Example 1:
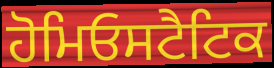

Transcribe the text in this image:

ਹੋਮਿਓਸਟੈਟਿਕ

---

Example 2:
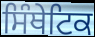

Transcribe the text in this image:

ਸਿੰਥੇਟਿਕ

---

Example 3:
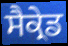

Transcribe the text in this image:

ਸੈਕ੍ਰੇਡ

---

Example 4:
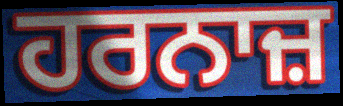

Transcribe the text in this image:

ਹਰਨਾਜ਼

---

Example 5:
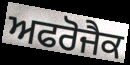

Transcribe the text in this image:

ਅਫਰੋਜੈਕ